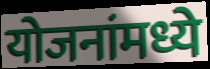
योजनांमध्ये